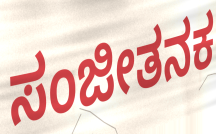
ಸಂಜೀತನಕ